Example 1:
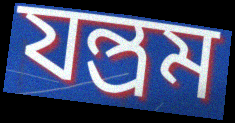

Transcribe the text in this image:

যন্ত্রম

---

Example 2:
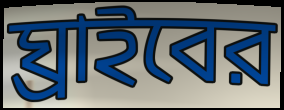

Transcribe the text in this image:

ঘ্রাইবের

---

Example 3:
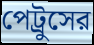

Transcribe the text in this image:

পেট্রুসের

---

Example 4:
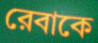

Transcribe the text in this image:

রেবাকে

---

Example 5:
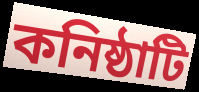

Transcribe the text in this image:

কনিষ্ঠাটি